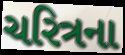
ચરિત્રના